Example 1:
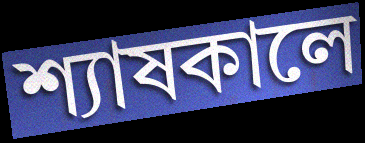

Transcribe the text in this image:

শ্যাষকালে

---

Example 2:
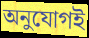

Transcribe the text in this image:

অনুযোগই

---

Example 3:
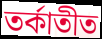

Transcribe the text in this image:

তর্কাতীত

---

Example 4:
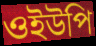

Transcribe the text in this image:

ওইউপি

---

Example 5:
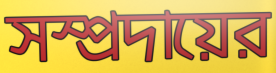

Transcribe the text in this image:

সস্প্রদায়ের